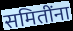
समितींना